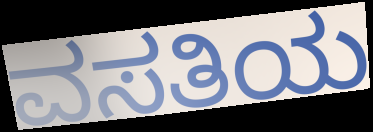
ವಸತಿಯ